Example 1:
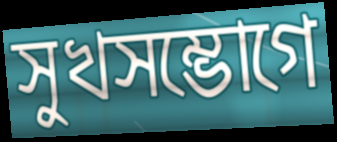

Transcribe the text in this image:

সুখসম্ভোগে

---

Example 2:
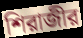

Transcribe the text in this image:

শিরাজীর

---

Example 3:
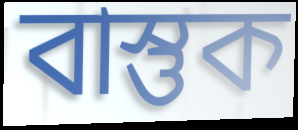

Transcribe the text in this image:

বাস্তুক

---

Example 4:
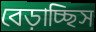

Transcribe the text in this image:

বেড়াচ্ছিস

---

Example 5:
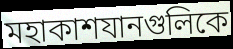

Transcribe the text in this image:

মহাকাশযানগুলিকে